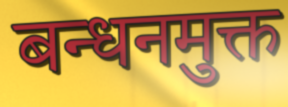
बन्धनमुक्त